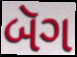
બૅગ